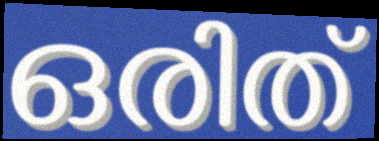
ഒരിത്